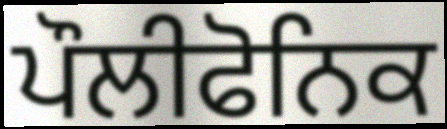
ਪੌਲੀਫੋਨਿਕ